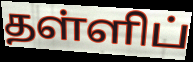
தள்ளிப்